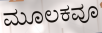
ಮೂಲಕವೂ